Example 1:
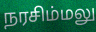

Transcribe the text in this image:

நரசிம்மலு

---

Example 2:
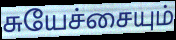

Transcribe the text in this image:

சுயேச்சையும்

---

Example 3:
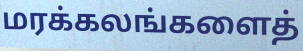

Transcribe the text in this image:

மரக்கலங்களைத்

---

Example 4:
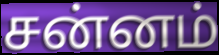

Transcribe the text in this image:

சன்னம்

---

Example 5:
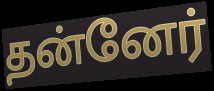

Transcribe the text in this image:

தன்னேர்